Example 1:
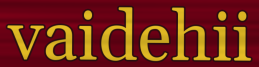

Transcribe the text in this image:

vaidehii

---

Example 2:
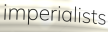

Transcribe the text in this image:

imperialists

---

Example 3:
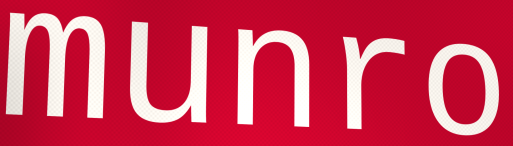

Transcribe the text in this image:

munro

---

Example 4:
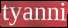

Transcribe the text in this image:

tyanni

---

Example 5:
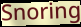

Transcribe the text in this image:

Snoring